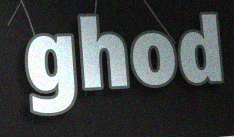
ghod